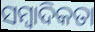
ସମ୍ବାଦିକତା